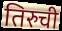
तिरुची